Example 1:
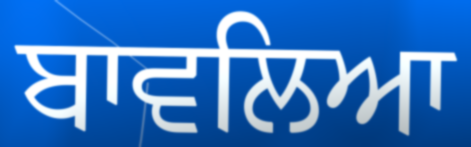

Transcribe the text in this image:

ਬਾਵਲਿਆ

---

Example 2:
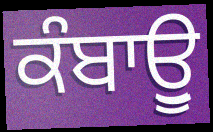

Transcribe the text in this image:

ਕੰਬਾਊੁ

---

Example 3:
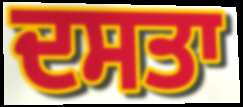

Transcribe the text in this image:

ਦਸਤਾ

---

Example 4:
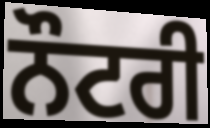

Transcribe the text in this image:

ਨੌਟਰੀ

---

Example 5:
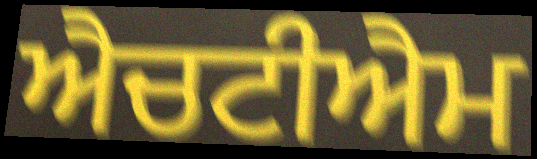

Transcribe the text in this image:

ਐਚਟੀਐਮ